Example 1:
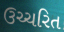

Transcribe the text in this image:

ઉચ્ચરિત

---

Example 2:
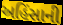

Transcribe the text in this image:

અહિંસાની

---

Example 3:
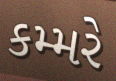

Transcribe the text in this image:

કમ્મરે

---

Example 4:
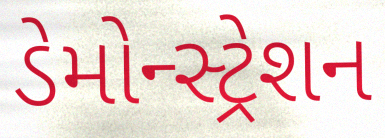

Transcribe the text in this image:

ડેમોન્સ્ટ્રેશન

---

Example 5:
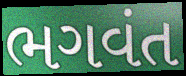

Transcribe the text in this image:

ભગવંત